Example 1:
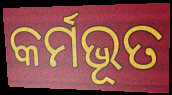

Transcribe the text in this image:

କର୍ମଭୂତ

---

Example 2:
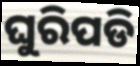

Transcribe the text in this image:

ଘୁରିପଡି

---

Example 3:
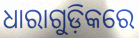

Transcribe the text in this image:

ଧାରାଗୁଡ଼ିକରେ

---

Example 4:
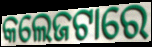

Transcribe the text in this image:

କଲେଜଟାରେ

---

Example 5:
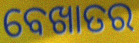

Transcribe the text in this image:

ବେଖାତର